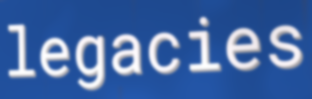
legacies